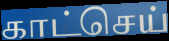
காட்செய்